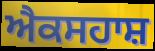
ਐਕਸਹਾਸ਼